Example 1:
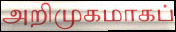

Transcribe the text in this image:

அறிமுகமாகப்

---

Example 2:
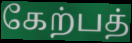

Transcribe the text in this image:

கேற்பத்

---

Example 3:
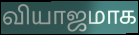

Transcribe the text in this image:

வியாஜமாக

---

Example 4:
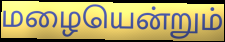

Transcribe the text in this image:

மழையென்றும்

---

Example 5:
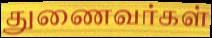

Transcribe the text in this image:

துணைவர்கள்